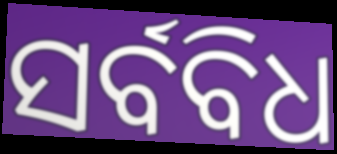
ସର୍ବବିଧ